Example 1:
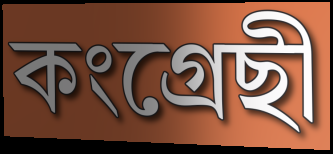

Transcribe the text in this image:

কংগ্ৰেছী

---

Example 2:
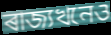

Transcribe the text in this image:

ৰাজ্যখনেও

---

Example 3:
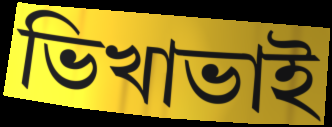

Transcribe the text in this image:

ভিখাভাই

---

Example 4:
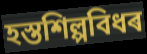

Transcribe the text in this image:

হস্তশিল্পবিধৰ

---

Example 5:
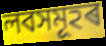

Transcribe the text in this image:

লবসমূহৰ